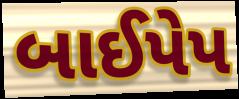
બાઈપેપ